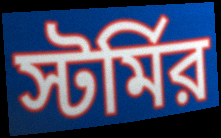
স্টর্মির